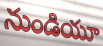
నుండియూ